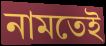
নামতেই